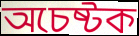
অচেষ্টক